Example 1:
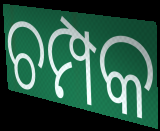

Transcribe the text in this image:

ଚମ୍ପକ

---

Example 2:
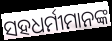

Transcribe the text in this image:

ସହଧର୍ମୀମାନଙ୍କ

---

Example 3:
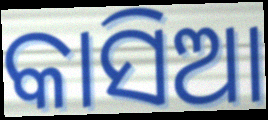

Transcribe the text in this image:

କାସିଆ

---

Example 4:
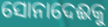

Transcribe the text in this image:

ସୋନାଦେଈକୁ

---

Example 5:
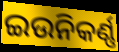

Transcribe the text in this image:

ଇଉନିକର୍ଣ୍ଣ